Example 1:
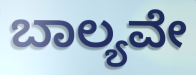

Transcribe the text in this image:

ಬಾಲ್ಯವೇ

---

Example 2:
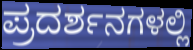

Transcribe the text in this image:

ಪ್ರದರ್ಶನಗಳಲ್ಲಿ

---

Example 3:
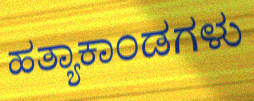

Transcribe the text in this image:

ಹತ್ಯಾಕಾಂಡಗಳು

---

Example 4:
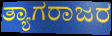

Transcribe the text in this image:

ತ್ಯಾಗರಾಜರ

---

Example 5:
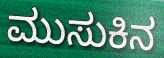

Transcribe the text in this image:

ಮುಸುಕಿನ